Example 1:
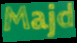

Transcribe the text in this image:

Majd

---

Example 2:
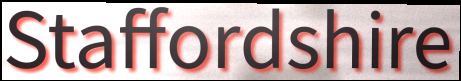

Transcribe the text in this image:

Staffordshire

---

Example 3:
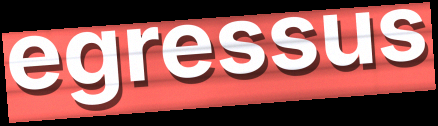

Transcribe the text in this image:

egressus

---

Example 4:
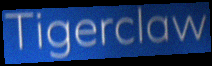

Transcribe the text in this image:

Tigerclaw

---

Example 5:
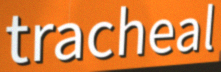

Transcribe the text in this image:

tracheal